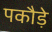
पकौड़े